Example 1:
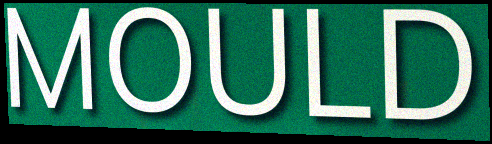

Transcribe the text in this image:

MOULD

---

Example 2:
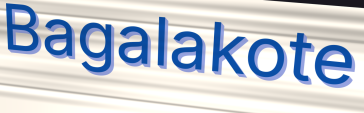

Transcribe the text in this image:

Bagalakote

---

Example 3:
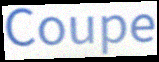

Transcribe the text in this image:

Coupe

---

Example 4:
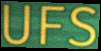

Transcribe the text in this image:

UFS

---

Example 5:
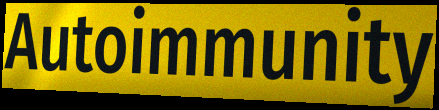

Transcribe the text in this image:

Autoimmunity